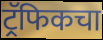
ट्रॅफिकचा